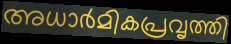
അധാർമികപ്രവൃത്തി